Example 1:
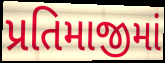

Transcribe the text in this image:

પ્રતિમાજીમાં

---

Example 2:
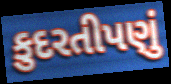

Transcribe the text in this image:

કુદરતીપણું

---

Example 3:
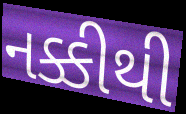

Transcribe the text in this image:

નક્કીથી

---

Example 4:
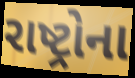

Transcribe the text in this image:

રાષ્ટ્રોના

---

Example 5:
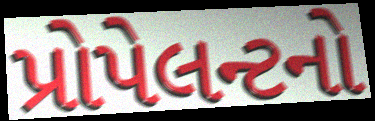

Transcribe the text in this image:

પ્રોપેલન્ટનો